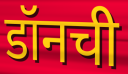
डॉनची